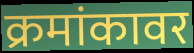
क्रमांकावर